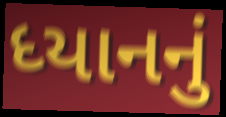
ધ્યાનનું